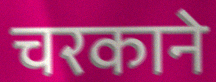
चरकाने